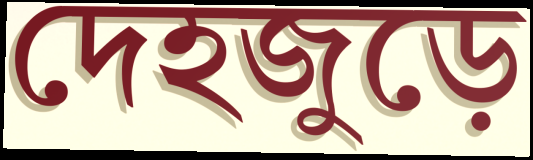
দেহজুড়ে